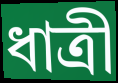
ধাত্ৰী